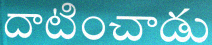
దాటించాడు